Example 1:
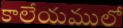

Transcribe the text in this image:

కాలేయములో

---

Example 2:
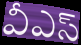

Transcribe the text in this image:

వీఎస్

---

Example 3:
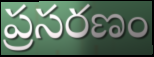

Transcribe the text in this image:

ప్రసరణం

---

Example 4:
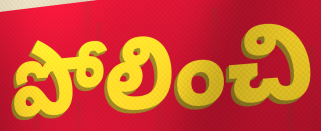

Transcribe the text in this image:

పోలించి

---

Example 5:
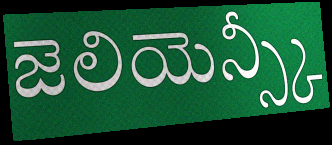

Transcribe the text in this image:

జెలియెన్స్కీ